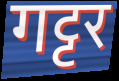
गट्टर